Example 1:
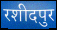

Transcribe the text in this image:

रशीदपुर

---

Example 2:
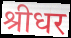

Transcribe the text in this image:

श्रीधर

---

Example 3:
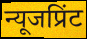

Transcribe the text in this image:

न्यूजप्रिंट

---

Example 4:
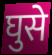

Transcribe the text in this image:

घुसे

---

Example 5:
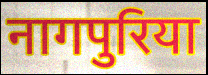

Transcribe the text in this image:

नागपुरिया